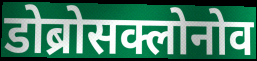
डोब्रोसक्लोनोव